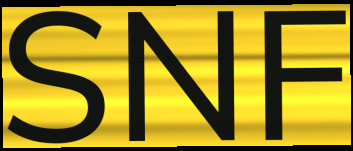
SNF